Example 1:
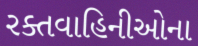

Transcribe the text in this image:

રક્તવાહિનીઓના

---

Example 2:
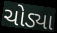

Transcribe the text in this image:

ચોડ્યા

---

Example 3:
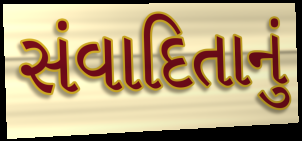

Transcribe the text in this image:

સંવાદિતાનું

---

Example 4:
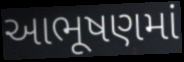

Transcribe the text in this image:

આભૂષણમાં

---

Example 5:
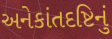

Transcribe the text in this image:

અનેકાંતદષ્ટિનું